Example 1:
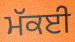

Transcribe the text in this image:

ਮੱਕਈ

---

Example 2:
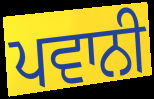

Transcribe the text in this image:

ਪਵਾਨੀ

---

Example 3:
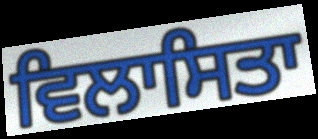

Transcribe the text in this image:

ਵਿਲਾਸਿਤਾ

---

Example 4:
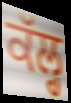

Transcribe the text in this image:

ਕੱਲ੍ਹ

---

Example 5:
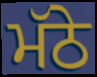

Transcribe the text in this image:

ਮੱਠੇ